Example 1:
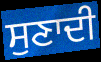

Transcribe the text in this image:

ਸੁਣਾਦੀ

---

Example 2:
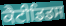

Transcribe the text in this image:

ਕੈਟੀਡਿਡਸ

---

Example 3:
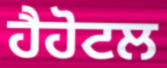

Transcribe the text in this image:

ਹੈਹੋਟਲ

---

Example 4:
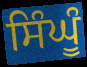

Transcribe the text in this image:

ਸਿੰਘੂੰ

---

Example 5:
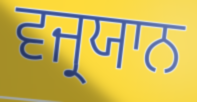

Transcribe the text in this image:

ਵਜ੍ਰਯਾਨ